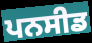
ਪਨਸੀਡ